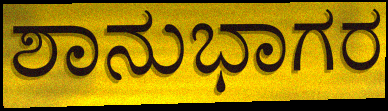
ಶಾನುಭಾಗರ